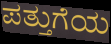
ಪತ್ತುಗೆಯ